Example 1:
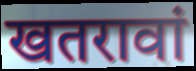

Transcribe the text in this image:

खतरावां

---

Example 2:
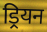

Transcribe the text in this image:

ड्रियन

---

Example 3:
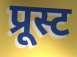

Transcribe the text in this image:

प्रूस्ट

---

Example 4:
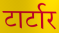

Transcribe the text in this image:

टार्टार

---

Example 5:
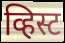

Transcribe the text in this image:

व्हिस्ट